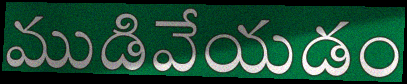
ముడివేయడం